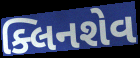
ક્લિનશેવ